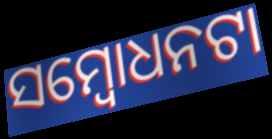
ସମ୍ବୋଧନଟା